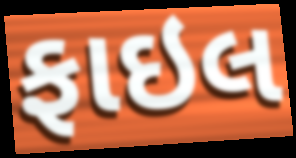
ફાઇલ